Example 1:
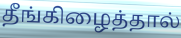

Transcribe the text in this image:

தீங்கிழைத்தால்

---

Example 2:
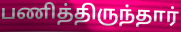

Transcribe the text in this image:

பணித்திருந்தார்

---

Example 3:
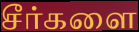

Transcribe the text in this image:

சீர்களை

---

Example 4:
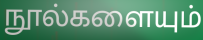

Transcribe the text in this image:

நூல்களையும்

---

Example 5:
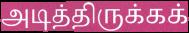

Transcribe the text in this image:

அடித்திருக்கக்